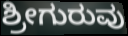
ಶ್ರೀಗುರುವು